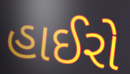
હાઈરો